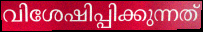
വിശേഷിപ്പിക്കുന്നത്